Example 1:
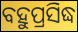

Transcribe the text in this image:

ବହୁପ୍ରସିଦ୍ଧ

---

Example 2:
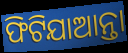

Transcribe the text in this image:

ଫିଟିଯାଆନ୍ତା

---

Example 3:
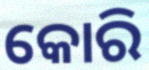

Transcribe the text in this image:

କୋରି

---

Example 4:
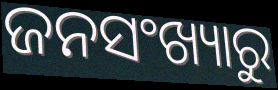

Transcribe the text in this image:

ଜନସଂଖ୍ୟାରୁ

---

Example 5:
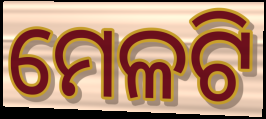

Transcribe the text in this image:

ମେଳଟି